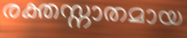
രക്തസ്നാതമായ